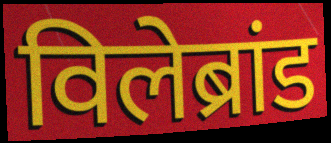
विलेब्रांड